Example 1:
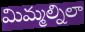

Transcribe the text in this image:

మిమ్మల్నిలా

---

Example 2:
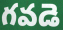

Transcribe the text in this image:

గవడె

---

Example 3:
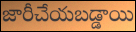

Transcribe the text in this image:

జారీచేయబడ్డాయి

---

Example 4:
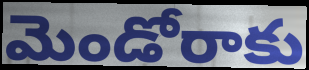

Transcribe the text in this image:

మెండోరాకు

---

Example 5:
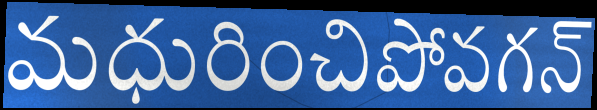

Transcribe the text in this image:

మధురించిపోవగన్